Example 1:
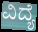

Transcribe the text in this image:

ವಿದ್ಯೆ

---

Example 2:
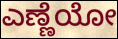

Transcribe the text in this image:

ಎಣ್ಣೆಯೋ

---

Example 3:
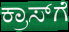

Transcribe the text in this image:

ಕ್ರಾಸ್‌ಗೆ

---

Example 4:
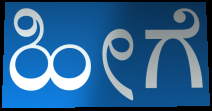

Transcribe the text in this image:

ಹೀಗೆ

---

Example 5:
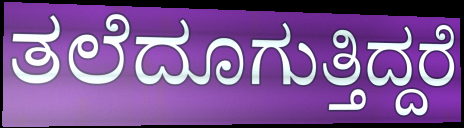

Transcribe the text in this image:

ತಲೆದೂಗುತ್ತಿದ್ದರೆ